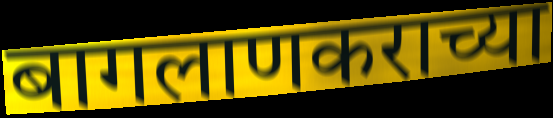
बागलाणकराच्या